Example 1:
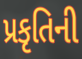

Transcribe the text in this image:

પ્રકૃતિની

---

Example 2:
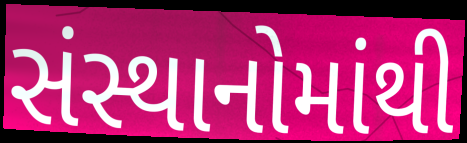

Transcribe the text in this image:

સંસ્થાનોમાંથી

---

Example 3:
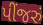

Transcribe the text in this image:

પીંજરું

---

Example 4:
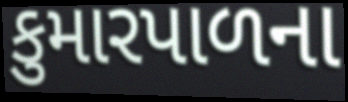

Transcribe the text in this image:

કુમારપાળના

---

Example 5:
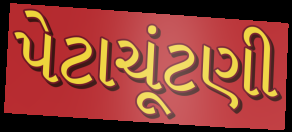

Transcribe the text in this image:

પેટાચૂંટણી